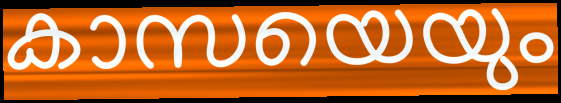
കാസയെയും